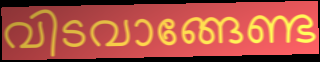
വിടവാങ്ങേണ്ട